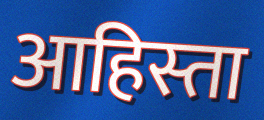
आहिस्‍ता